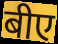
बीए